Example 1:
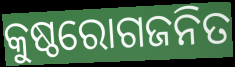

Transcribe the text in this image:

କୁଷ୍ଠରୋଗଜନିତ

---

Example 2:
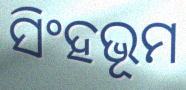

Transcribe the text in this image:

ସିଂହଭୂମ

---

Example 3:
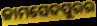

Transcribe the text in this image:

ଜାମସେଦପୁରର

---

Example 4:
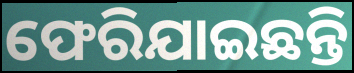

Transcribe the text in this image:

ଫେରିଯାଇଛନ୍ତି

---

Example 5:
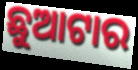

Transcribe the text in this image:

ଛୁଆଟାର